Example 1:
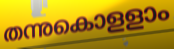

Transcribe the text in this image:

തന്നുകൊളളാം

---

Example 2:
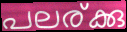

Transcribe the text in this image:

പലര്ക്കു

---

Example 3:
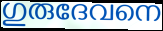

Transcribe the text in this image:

ഗുരുദേവനെ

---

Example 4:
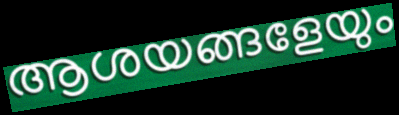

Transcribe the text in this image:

ആശയങ്ങളേയും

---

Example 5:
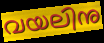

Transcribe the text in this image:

വയലിനു